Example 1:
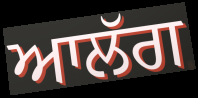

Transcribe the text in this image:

ਆਲੱਗ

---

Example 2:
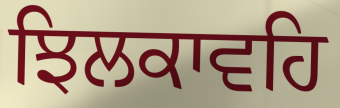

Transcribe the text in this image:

ਝਿਲਕਾਵਹਿ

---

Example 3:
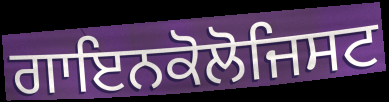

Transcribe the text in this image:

ਗਾਇਨਕੋਲੋਜਿਸਟ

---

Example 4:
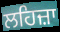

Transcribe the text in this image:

ਲਹਿਜ਼ਾ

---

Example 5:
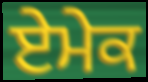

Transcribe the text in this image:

ਏਮੇਕ